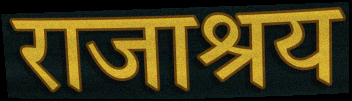
राजाश्रय